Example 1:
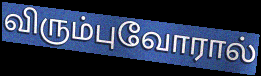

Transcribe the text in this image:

விரும்புவோரால்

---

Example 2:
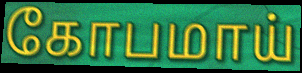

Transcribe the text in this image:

கோபமாய்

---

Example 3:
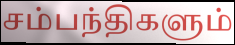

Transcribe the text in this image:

சம்பந்திகளும்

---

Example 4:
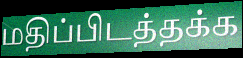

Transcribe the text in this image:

மதிப்பிடத்தக்க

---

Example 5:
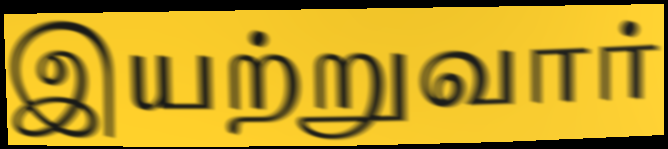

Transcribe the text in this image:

இயற்றுவார்